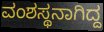
ವಂಶಸ್ಥನಾಗಿದ್ದ